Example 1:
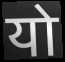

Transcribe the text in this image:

यो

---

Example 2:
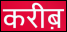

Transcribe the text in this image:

करीब़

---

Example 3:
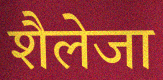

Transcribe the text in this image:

शैलेजा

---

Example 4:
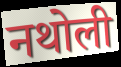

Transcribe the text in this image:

नथोली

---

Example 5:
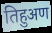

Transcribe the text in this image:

तिहुअण